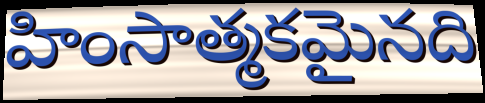
హింసాత్మకమైనది